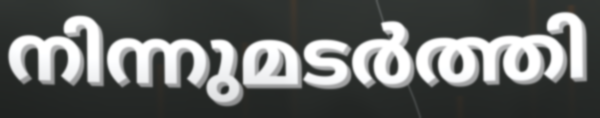
നിന്നുമടർത്തി